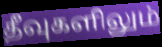
தீவுகளிலும்